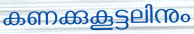
കണക്കുകൂട്ടലിനും